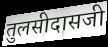
तुलसीदासजी